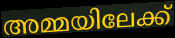
അമ്മയിലേക്ക്